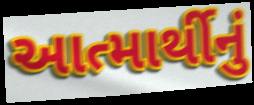
આત્માર્થીનું